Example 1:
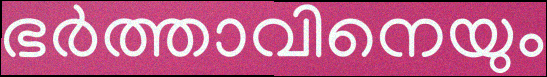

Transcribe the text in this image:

ഭർത്താവിനെയും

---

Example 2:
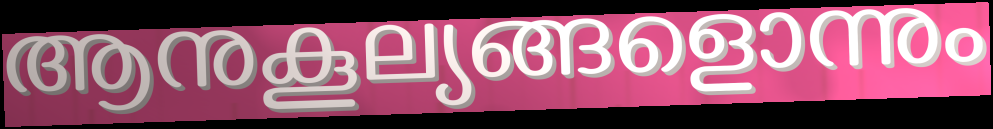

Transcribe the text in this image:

ആനുകൂല്യങ്ങളൊന്നും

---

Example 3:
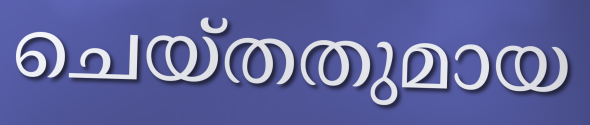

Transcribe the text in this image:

ചെയ്തതുമായ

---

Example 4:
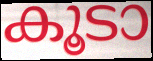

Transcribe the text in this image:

കൂടാ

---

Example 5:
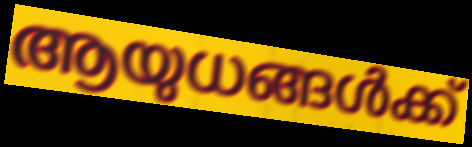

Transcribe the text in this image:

ആയുധങ്ങൾക്ക്